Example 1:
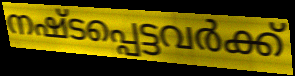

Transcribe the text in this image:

നഷ്ടപ്പെട്ടവർക്ക്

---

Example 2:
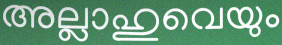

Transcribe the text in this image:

അല്ലാഹുവെയും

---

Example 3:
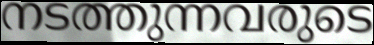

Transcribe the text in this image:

നടത്തുന്നവരുടെ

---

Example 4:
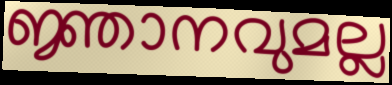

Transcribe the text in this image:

ജ്ഞാനവുമല്ല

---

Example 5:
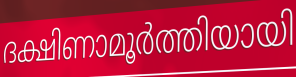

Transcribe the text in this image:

ദക്ഷിണാമൂർത്തിയായി